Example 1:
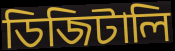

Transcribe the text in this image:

ডিজিটালি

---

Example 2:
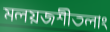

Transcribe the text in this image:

মলয়জশীতলাং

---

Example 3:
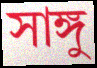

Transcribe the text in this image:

সাঙ্গু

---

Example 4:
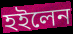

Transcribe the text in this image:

হইলেন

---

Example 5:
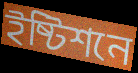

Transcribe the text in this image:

ইষ্টিশনে